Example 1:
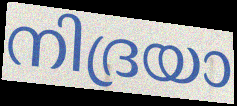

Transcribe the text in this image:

നിദ്രയാ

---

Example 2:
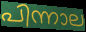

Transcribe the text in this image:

പിന്നാല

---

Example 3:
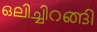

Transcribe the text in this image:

ഒലിച്ചിറങ്ങി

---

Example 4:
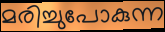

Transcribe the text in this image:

മരിച്ചുപോകുന്ന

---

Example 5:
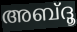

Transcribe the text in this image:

അബ്ദൂ